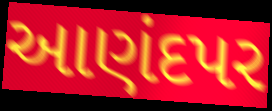
આણંદપર